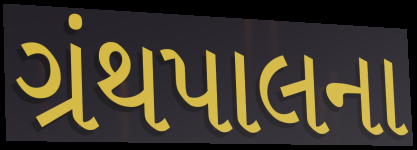
ગ્રંથપાલના